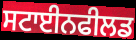
ਸਟਾਈਨਫੀਲਡ